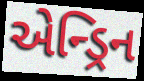
એન્ડ્રિન